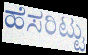
ಹೆಸರಿಟ್ಟು